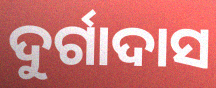
ଦୁର୍ଗାଦାସ